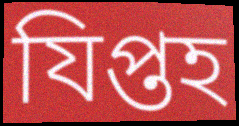
যিপ্তহ